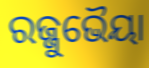
ରଜ୍ଜୁଭୈୟା